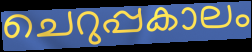
ചെറുപ്പകാലം